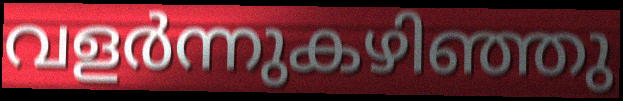
വളർന്നുകഴിഞ്ഞു